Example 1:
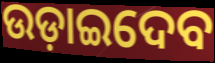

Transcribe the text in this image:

ଉଡ଼ାଇଦେବ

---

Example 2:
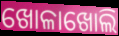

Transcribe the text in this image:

ଖୋଳାଖୋଲି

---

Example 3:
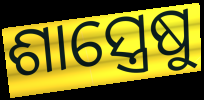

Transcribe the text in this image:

ଶାସ୍ତ୍ରେଷୁ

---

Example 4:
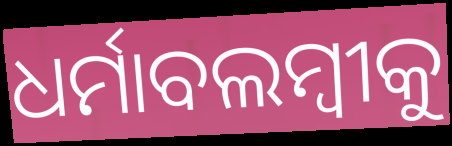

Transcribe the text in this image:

ଧର୍ମାବଲମ୍ବୀକୁ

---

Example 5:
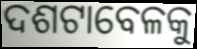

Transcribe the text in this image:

ଦଶଟାବେଳକୁ